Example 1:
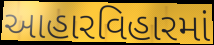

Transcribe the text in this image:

આહારવિહારમાં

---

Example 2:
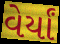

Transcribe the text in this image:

વેર્યાં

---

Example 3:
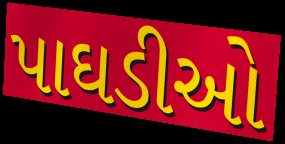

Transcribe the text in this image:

પાઘડીઓ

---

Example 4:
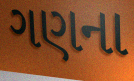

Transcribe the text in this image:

ગણના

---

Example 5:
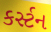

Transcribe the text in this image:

કર્સ્ટન